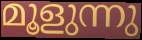
മൂളുന്നു